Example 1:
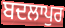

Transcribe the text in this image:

ਬਦਲਾਪੁਰ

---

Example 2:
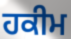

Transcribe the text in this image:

ਹਕੀਮ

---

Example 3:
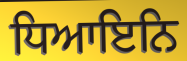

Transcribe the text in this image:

ਧਿਆਇਨਿ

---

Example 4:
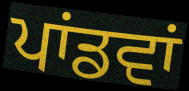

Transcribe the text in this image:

ਪਾਂਡਵਾਂ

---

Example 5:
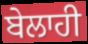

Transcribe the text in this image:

ਬੇਲਾਹੀ